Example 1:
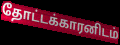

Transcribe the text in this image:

தோட்டக்காரனிடம்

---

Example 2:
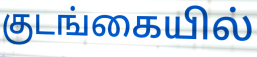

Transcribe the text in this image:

குடங்கையில்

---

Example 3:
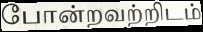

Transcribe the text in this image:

போன்றவற்றிடம்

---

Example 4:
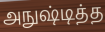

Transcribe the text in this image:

அநுஷ்டித்த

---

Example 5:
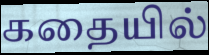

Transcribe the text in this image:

கதையில்